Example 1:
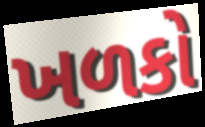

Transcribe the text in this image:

ખળકો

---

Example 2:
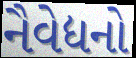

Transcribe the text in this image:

નૈવેદ્યનો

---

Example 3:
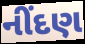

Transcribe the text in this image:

નીંદણ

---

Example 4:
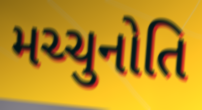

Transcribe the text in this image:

મચ્ચુનોતિ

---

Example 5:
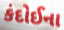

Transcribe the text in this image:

કંદોઈના